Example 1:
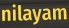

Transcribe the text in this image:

nilayam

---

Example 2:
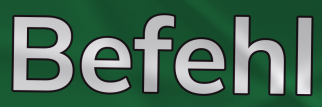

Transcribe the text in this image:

Befehl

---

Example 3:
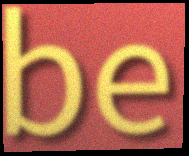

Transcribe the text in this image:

be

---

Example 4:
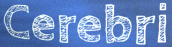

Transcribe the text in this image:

Cerebri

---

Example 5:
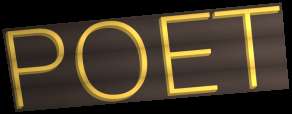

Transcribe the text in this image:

POET